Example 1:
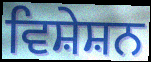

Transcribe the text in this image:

ਵਿਸ਼ੇਸ਼ਨ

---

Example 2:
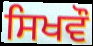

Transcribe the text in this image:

ਸਿਖਵੌ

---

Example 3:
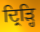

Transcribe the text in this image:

ਦ੍ਰਿੜ੍ਹਿ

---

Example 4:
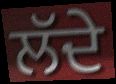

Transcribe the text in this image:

ਲੱਦੇ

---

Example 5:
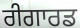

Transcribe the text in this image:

ਰੀਗਾਰਡ